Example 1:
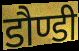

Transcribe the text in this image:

डौण्डी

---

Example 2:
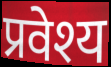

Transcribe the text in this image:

प्रवेश्य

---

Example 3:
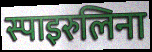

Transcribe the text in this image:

स्पाइरुलिना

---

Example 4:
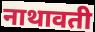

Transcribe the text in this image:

नाथावती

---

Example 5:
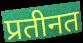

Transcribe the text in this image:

प्रतीनत